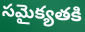
సమైక్యతకి